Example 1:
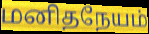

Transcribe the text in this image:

மனிதநேயம்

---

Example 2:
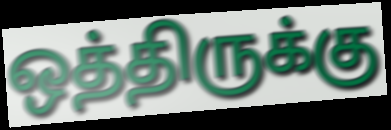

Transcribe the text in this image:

ஒத்திருக்கு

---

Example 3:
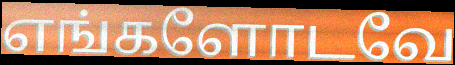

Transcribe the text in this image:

எங்களோடவே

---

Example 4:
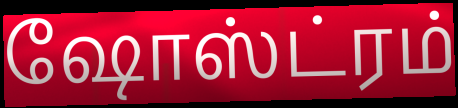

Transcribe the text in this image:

ஷோஸ்ட்ரம்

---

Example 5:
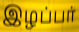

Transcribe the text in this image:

இழப்பர்